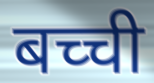
बच्ची